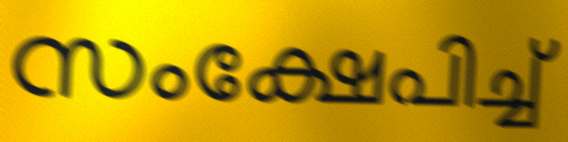
സംക്ഷേപിച്ച്